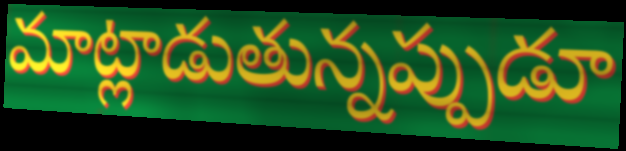
మాట్లాడుతున్నప్పుడూ